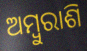
ଅମ୍ୱୁରାଶି